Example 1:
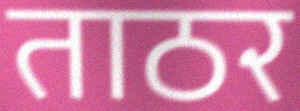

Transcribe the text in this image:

ताठर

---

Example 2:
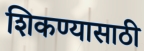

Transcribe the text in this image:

शिकण्यासाठी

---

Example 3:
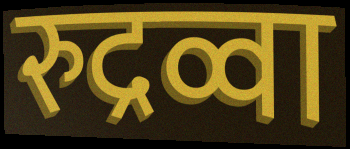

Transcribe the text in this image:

रुद्रव्वा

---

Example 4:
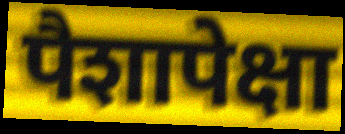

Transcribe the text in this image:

पैशापेक्षा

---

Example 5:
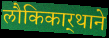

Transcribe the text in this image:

लौकिकार्थाने